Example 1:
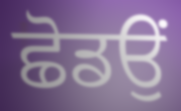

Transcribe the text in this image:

ਛੋਡਉਂ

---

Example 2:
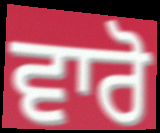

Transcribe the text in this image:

ਵਾਰੋ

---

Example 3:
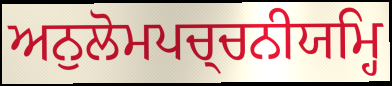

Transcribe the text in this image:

ਅਨੁਲੋਮਪਚ੍ਚਨੀਯਮ੍ਹਿ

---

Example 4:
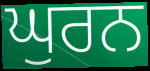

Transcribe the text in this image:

ਘੁਰਨ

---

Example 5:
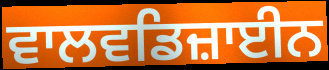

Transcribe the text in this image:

ਵਾਲਵਡਿਜ਼ਾਈਨ